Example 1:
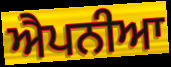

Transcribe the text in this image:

ਐਪਨੀਆ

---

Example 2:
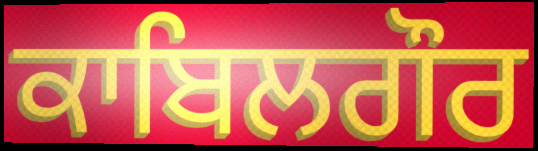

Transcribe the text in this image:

ਕਾਬਿਲਗੌਰ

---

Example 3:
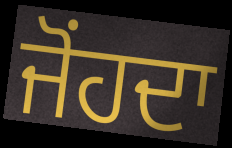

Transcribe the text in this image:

ਜੋਂਹਦਾ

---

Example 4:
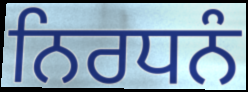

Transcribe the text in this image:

ਨਿਰਧਨੰ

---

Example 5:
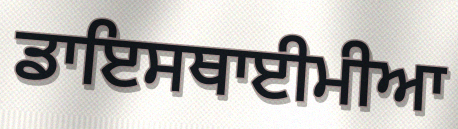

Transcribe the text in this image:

ਡਾਇਸਥਾਈਮੀਆ